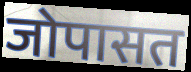
जोपासत